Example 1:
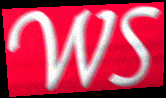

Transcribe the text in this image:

WS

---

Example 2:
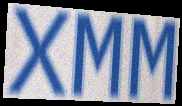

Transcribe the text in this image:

XMM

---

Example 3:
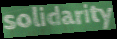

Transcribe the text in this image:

solidarity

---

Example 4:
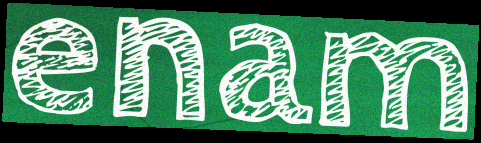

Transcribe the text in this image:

enam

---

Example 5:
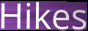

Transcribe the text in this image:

Hikes